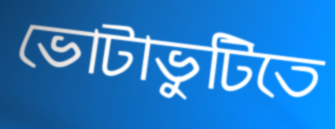
ভোটাভুটিতে